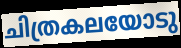
ചിത്രകലയോടു